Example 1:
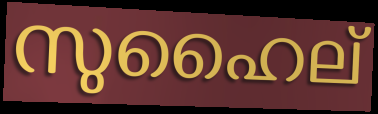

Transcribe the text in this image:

സുഹൈല്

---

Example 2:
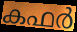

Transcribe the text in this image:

കഫർ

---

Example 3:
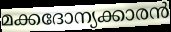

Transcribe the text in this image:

മക്കദോന്യക്കാരൻ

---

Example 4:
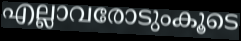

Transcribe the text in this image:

എല്ലാവരോടുംകൂടെ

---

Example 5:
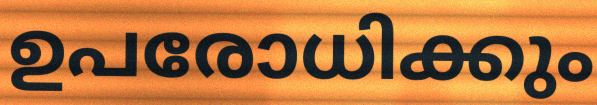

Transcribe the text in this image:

ഉപരോധിക്കും